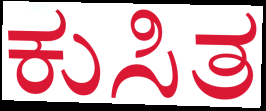
ಕುಸಿತ